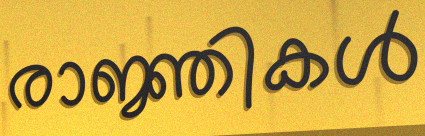
രാജ്ഞികൾ